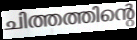
ചിത്തത്തിന്റെ